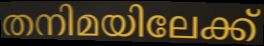
തനിമയിലേക്ക്